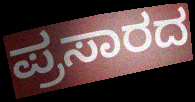
ಪ್ರಸಾರದ